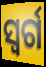
ସ୍ବର୍ଗ